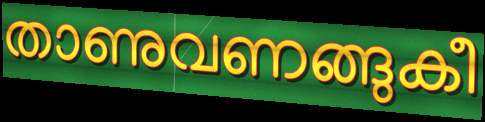
താണുവണങ്ങുകീ